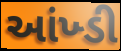
આંખ્ડી